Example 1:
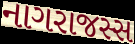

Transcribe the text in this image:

નાગરાજસ્સ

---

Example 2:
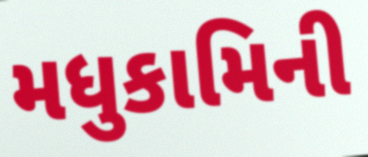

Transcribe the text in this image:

મધુકામિની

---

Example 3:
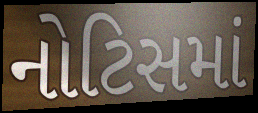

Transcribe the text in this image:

નોટિસમાં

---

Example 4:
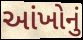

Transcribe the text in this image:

આંખોનું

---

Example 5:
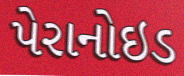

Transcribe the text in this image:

પેરાનોઇડ